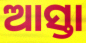
ଆସ୍ତା